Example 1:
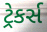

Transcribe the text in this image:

ટ્રેકર્સ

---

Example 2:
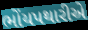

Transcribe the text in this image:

ભોંયપથારીએ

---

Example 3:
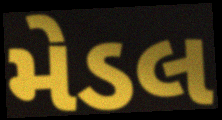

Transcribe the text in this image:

મેડલ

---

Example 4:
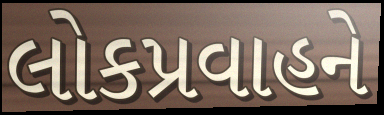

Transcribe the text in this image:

લોકપ્રવાહને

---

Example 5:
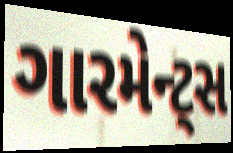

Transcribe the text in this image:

ગારમેન્ટ્સ